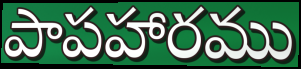
పాపహారము